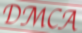
DMCA